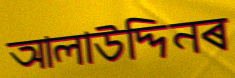
আলাউদ্দিনৰ